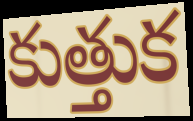
కుత్తుక